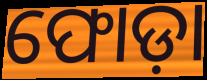
ଫୋଡ଼ା